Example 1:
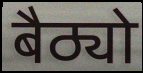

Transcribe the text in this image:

बैठ्यो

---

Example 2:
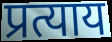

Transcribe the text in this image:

प्रत्याय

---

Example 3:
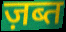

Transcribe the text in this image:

ज़ब्त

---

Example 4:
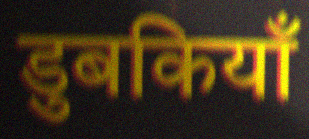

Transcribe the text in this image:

डुबकियाँ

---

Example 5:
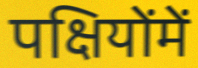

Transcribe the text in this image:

पक्षियोंमें